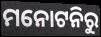
ମନୋଟନିରୁ